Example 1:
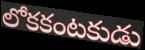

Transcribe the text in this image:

లోకకంటకుడు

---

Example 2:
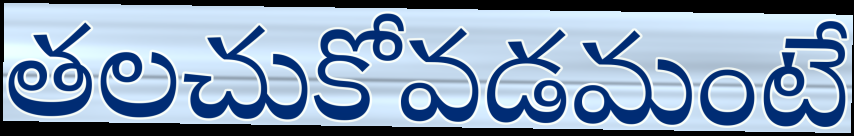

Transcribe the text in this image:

తలచుకోవడమంటే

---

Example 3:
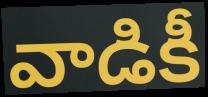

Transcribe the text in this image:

వాడికీ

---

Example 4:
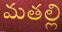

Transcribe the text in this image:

మతల్లి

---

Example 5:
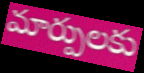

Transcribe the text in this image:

మార్పులకు